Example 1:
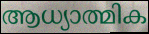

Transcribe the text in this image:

ആധ്യാത്മിക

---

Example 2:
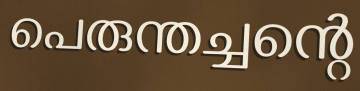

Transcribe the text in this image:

പെരുന്തച്ചന്റെ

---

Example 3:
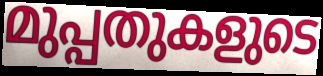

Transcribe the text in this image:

മുപ്പതുകളുടെ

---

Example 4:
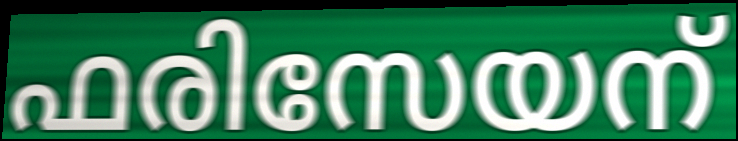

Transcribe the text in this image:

ഫരിസേയന്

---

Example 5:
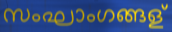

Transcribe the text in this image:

സംഘാംഗങ്ങള്